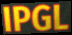
IPGL